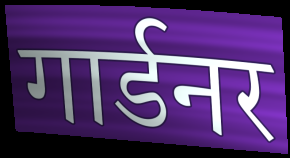
गार्डनर